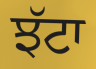
ਝੱਟਾ